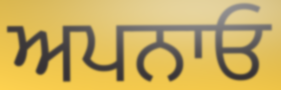
ਅਪਨਾਓ